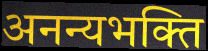
अनन्यभक्ति